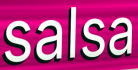
salsa